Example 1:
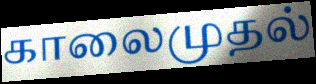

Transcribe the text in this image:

காலைமுதல்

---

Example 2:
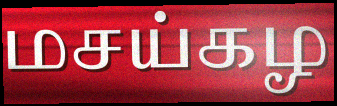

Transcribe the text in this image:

மசய்கழ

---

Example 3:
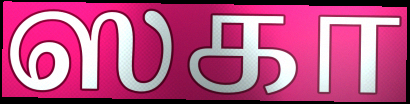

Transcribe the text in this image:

ஸகா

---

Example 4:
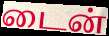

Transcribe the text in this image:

டைன்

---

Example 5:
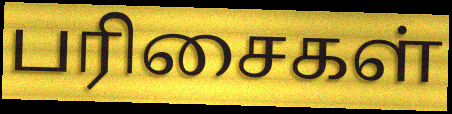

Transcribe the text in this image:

பரிசைகள்